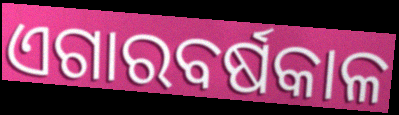
ଏଗାରବର୍ଷକାଳ